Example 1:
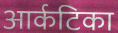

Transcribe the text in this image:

आर्कटिका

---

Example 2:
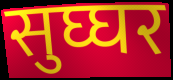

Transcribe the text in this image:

सुघ्घर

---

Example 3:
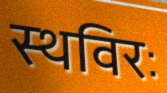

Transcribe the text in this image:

स्थविरः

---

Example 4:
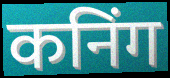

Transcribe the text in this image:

कनिंग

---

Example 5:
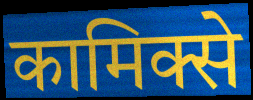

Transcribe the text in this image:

कामिक्से